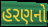
હરણનો